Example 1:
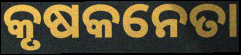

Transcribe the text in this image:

କୃଷକନେତା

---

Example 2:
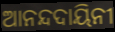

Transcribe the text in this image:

ଆନନ୍ଦଦାୟିନୀ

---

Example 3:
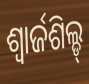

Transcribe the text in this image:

ଶ୍ୱାର୍ଜଶିଲ୍ଡ୍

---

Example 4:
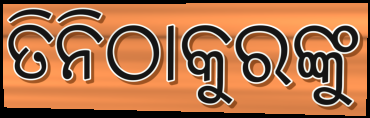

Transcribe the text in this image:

ତିନିଠାକୁରଙ୍କୁ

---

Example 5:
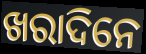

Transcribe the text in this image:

ଖରାଦିନେ